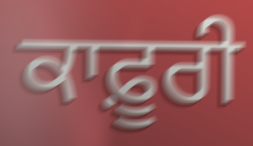
ਕਾਫ਼ੂਰੀ